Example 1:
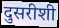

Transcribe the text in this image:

दुसरीशी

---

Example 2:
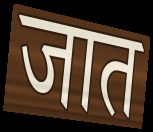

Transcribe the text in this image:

जात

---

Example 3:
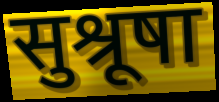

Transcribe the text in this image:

सुश्रूषा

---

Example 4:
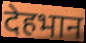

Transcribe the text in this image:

देहभान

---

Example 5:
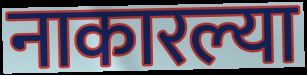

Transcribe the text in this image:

नाकारल्या